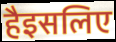
हैइसलिए